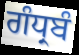
ਗੰਧ੍ਰਬੰ